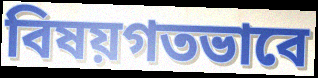
বিষয়গতভাবে